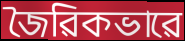
জৈৱিকভাৱে